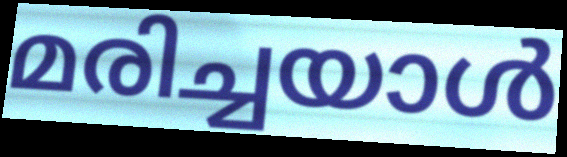
മരിച്ചയാൾ